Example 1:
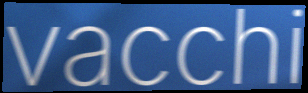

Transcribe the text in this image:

vacchi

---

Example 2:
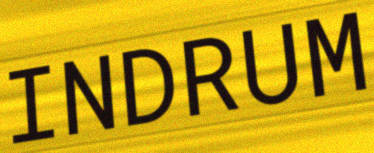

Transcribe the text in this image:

INDRUM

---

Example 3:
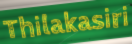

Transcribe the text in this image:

Thilakasiri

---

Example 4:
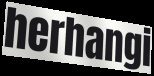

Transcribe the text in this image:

herhangi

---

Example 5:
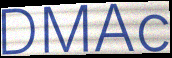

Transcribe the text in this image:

DMAc